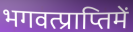
भगवत्प्राप्तिमें